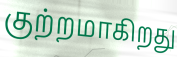
குற்றமாகிறது